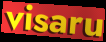
visaru